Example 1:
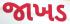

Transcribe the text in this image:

જાખડ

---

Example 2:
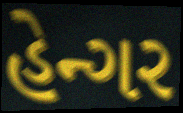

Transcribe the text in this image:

હેન્ગર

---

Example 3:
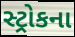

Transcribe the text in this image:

સ્ટ્રોકના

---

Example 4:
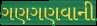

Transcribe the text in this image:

ગણગણવાની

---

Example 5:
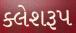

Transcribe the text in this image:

ક્લેશરૂપ